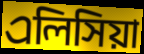
এলিসিয়া